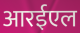
आरईएल